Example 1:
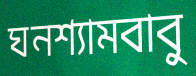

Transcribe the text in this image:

ঘনশ্যামবাবু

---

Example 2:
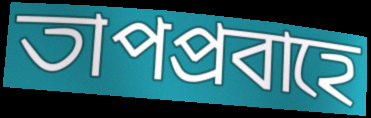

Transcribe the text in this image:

তাপপ্রবাহে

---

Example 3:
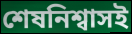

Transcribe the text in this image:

শেষনিশ্বাসই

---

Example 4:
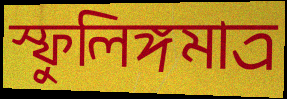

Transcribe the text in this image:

স্ফুলিঙ্গমাত্র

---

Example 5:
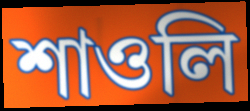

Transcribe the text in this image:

শাওলি